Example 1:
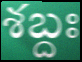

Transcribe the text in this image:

శబ్దః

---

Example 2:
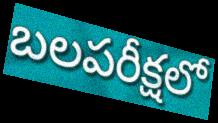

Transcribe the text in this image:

బలపరీక్షలో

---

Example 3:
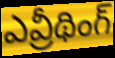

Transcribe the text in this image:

ఎవ్రీథింగ్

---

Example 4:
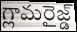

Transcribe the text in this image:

గ్లామరైజ్డ్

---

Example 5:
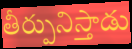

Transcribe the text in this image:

తీర్పునిస్తాడు